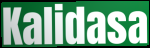
Kalidasa